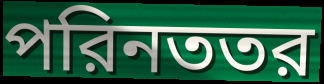
পরিনততর